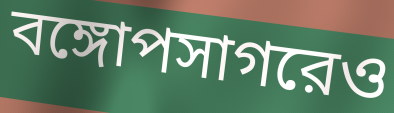
বঙ্গোপসাগরেও